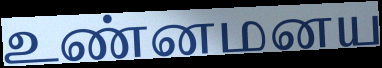
உண்னமனய